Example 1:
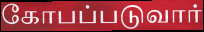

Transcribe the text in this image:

கோபப்படுவார்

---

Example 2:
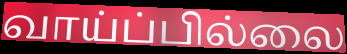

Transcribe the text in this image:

வாய்ப்பில்லை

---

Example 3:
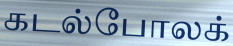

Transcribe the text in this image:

கடல்போலக்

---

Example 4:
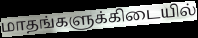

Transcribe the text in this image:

மாதங்களுக்கிடையில்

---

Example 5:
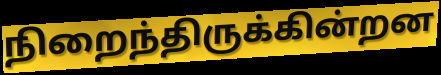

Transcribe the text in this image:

நிறைந்திருக்கின்றன